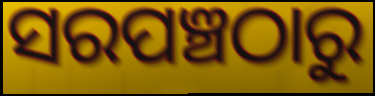
ସରପଞ୍ଚଠାରୁ